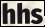
hhs